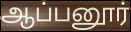
ஆப்பனூர்